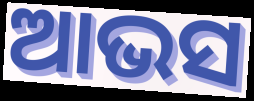
ଆଭସ